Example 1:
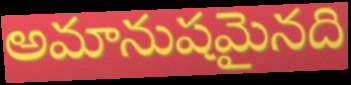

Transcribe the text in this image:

అమానుషమైనది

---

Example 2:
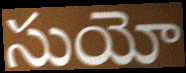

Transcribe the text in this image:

సుయో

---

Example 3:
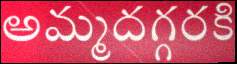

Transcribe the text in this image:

అమ్మదగ్గరకి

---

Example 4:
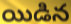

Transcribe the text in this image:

యిడిన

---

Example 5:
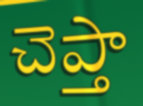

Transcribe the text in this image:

చెప్తా